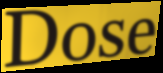
Dose